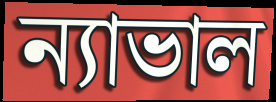
ন্যাভাল